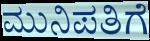
ಮುನಿಪತಿಗೆ